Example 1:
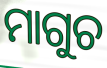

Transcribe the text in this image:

ମାଗୁଚ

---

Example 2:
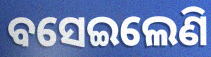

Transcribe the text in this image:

ବସେଇଲେଣି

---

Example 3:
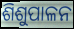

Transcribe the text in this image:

ଶିଶୁପାଳନ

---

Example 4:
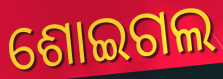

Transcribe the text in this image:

ଶୋଇଗଲ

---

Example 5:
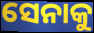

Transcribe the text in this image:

ସେନାକୁ